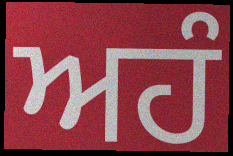
ਅਹੰ